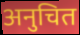
अनुचित